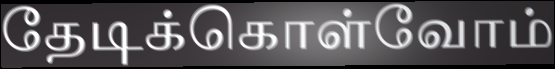
தேடிக்கொள்வோம்